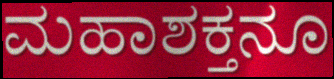
ಮಹಾಶಕ್ತನೂ